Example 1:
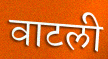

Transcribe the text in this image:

वाटली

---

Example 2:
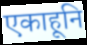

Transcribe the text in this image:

एकाहूनि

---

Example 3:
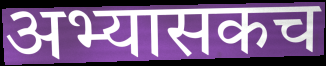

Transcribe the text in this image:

अभ्यासकच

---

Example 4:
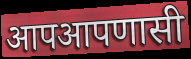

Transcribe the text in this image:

आपआपणासी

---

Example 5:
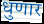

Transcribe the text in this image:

धुणार